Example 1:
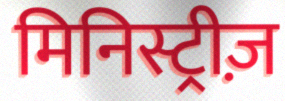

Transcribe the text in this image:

मिनिस्ट्रीज़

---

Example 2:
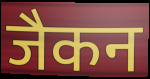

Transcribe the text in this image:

जैकन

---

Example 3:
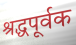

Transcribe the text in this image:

श्रद्धपूर्वक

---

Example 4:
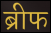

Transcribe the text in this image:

ब्रीफ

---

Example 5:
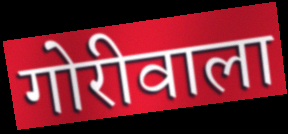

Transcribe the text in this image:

गोरीवाला